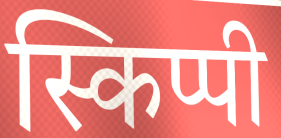
स्किप्पी